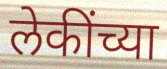
लेकींच्या